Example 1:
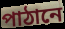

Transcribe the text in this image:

পাঠানে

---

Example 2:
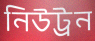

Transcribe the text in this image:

নিউট্ৰন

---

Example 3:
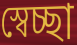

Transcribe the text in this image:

স্বেচ্ছা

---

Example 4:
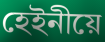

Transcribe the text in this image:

হেইনীয়ে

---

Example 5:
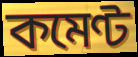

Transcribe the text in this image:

কমেণ্ট